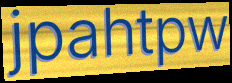
jpahtpw